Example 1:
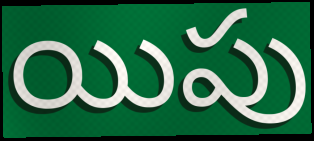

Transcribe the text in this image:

యిపు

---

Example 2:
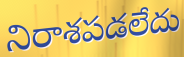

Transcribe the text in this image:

నిరాశపడలేదు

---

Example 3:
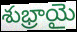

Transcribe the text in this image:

శుభ్రాయై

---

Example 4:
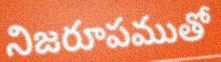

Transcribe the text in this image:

నిజరూపముతో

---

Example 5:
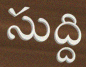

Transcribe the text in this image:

సుద్ది